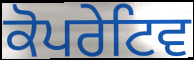
ਕੋਪਰੇਟਿਵ